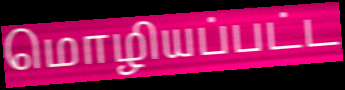
மொழியப்பட்ட